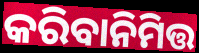
କରିବାନିମିତ୍ତ